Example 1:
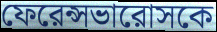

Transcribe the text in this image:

ফেরেন্সভারোসকে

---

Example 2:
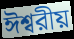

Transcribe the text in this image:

ঈশ্বরীয়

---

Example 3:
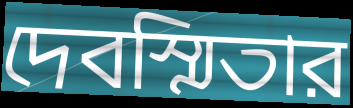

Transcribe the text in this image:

দেবস্মিতার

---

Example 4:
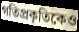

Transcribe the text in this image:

গতিপ্রকৃতিকেও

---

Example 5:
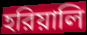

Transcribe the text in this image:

হরিয়ালি